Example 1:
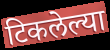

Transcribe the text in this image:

टिकलेल्या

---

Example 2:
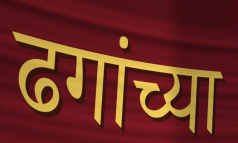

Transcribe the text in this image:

ढगांच्या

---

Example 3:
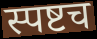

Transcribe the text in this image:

स्पष्टच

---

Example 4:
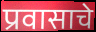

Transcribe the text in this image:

प्रवासाचे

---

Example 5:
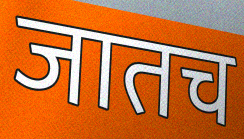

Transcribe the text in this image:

जातच